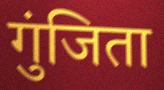
गुंजिता